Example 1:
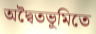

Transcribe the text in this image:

অদ্বৈতভূমিতে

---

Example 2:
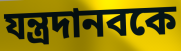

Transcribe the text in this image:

যন্ত্রদানবকে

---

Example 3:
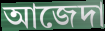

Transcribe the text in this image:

আজেদা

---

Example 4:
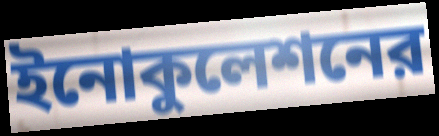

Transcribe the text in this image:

ইনোকুলেশনের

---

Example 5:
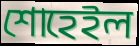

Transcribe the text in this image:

শোহেইল